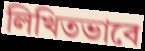
লিখিতভাবে